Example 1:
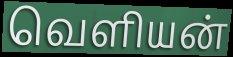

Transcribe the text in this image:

வெளியன்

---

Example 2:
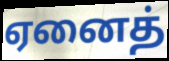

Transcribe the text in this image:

ஏனைத்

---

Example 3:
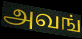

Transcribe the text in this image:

அவங்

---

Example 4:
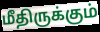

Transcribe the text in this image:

மீதிருக்கும்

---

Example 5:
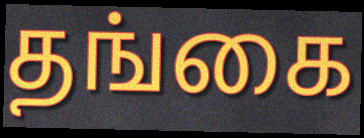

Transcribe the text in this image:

தங்கை